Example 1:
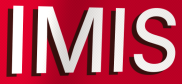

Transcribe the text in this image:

IMIS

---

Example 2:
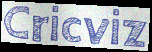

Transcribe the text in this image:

Cricviz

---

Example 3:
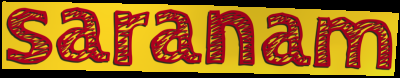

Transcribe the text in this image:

saranam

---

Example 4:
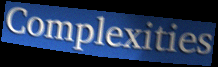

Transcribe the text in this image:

Complexities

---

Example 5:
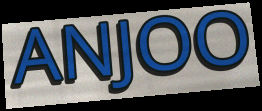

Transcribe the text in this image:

ANJOO